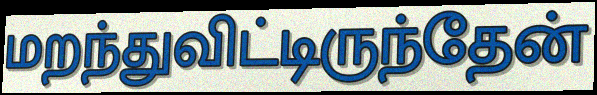
மறந்துவிட்டிருந்தேன்